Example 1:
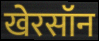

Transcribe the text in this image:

खेरसॉन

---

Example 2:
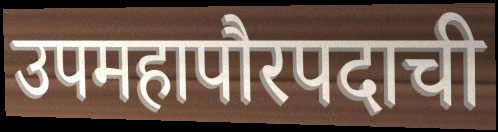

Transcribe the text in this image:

उपमहापौरपदाची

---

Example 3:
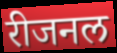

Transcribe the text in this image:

रीजनल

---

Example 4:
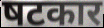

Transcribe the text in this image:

षटकार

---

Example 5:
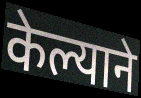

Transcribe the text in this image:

केल्याने